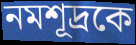
নমশূদ্রকে